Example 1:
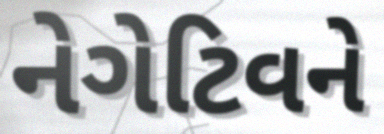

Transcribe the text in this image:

નેગેટિવને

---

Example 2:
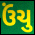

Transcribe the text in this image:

ઉંચુ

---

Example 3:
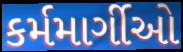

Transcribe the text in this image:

કર્મમાર્ગીઓ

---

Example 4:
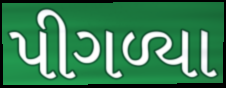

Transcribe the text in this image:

પીગળ્યા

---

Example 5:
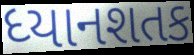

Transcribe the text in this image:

ધ્યાનશતક